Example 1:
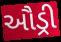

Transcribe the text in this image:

ઔડ્રી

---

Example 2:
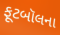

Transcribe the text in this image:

ફૂટબૉલના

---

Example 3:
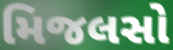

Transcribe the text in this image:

મિજલસો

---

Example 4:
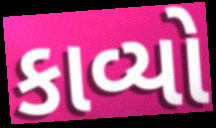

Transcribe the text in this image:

કાવ્યો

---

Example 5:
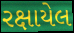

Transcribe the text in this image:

રક્ષાયેલ